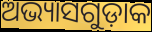
ଅଭ୍ୟାସଗୁଡ଼ାକ